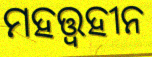
ମହତ୍ତ୍ବହୀନ